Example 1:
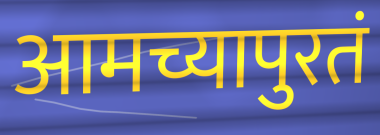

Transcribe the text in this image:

आमच्यापुरतं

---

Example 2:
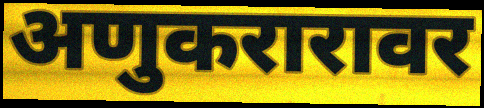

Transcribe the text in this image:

अणुकरारावर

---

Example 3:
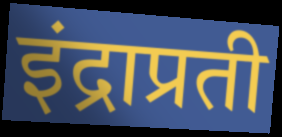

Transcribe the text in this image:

इंद्राप्रती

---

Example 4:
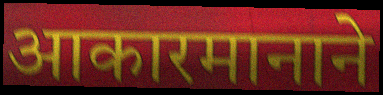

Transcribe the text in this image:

आकारमानाने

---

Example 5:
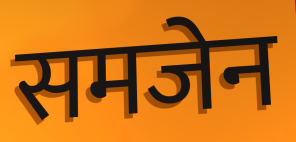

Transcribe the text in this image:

समजेन